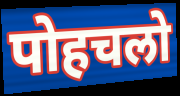
पोहचलो